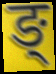
ङ्